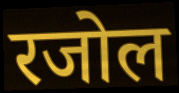
रजोल